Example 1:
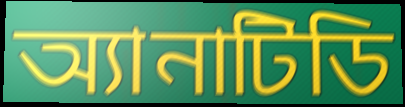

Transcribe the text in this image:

অ্যানাটিডি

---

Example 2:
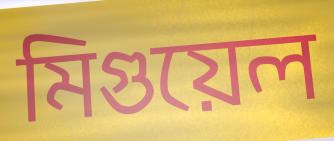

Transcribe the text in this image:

মিগুয়েল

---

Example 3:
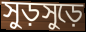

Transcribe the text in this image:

সুড়সুড়ে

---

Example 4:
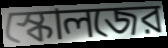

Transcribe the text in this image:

স্কোলজের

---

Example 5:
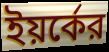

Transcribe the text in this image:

ইয়র্কের